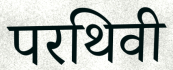
परथिवी